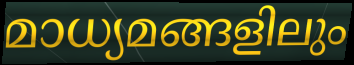
മാധ്യമങ്ങളിലും